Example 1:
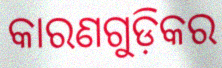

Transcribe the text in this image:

କାରଣଗୁଡ଼ିକର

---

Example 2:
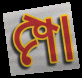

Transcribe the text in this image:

ମ୍ପା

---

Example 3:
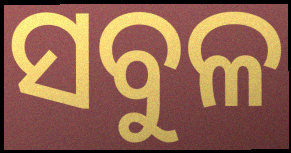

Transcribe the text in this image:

ସବୁଳ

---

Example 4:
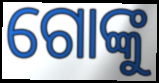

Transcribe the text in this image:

ଗୋଙ୍କୁ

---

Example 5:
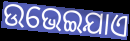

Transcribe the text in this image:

ଉଭେଇଯାଏ